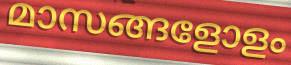
മാസങ്ങളോളം